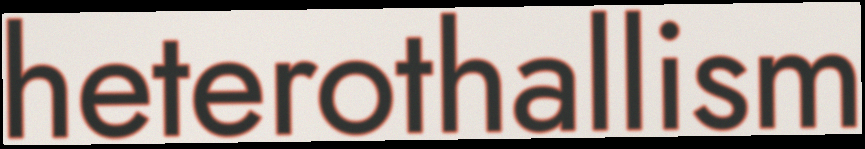
heterothallism